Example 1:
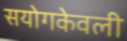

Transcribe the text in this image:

सयोगकेवली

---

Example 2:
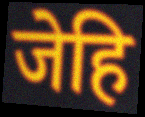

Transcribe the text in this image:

जेहि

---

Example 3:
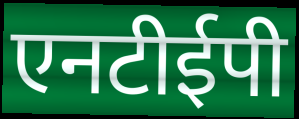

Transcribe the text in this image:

एनटीईपी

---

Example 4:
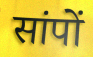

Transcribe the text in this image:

सांपों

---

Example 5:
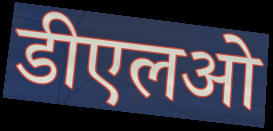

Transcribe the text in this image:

डीएलओ